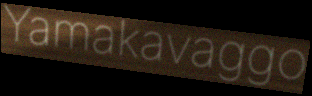
Yamakavaggo